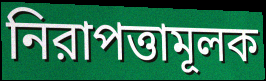
নিরাপত্তামূলক